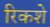
रिकशे